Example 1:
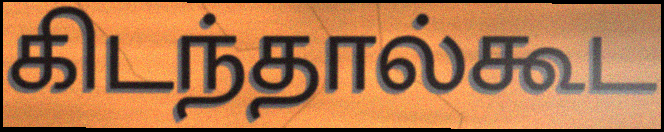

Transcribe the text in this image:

கிடந்தால்கூட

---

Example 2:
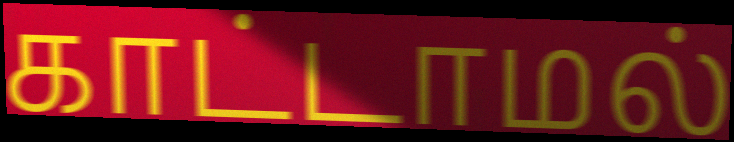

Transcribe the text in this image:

காட்டாமல்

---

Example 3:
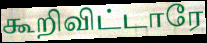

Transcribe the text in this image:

கூறிவிட்டாரே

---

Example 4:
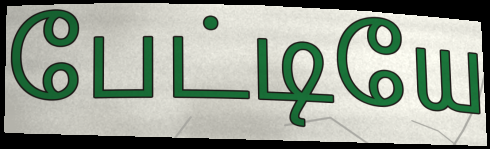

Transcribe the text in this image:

பேட்டியே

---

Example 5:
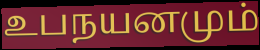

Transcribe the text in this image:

உபநயனமும்